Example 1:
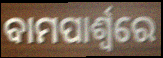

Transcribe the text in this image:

ବାମପାର୍ଶ୍ଵରେ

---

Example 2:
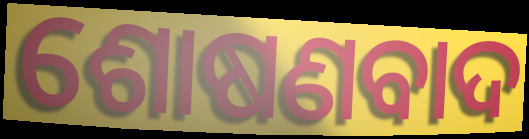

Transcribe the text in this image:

ଶୋଷଣବାଦ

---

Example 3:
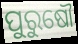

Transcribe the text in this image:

ପୁରୁଷୌ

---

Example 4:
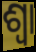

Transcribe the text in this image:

ଶ୍ୱା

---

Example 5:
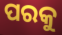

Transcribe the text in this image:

ପରକୁ